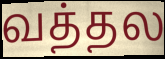
வத்தல